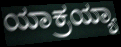
ಯಾಕ್ರಯ್ಯಾ